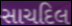
સાચદિલ